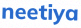
neetiya